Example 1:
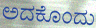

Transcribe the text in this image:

ಅದಕೊಂದು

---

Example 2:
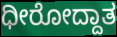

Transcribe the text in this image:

ಧೀರೋದ್ದಾತ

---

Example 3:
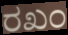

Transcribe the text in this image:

ರಖಂ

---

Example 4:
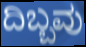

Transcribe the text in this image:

ದಿಬ್ಬವು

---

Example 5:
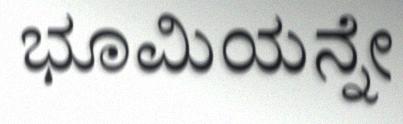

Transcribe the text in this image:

ಭೂಮಿಯನ್ನೇ